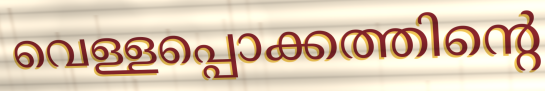
വെള്ളപ്പൊക്കത്തിന്റെ